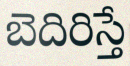
బెదిరిస్తే